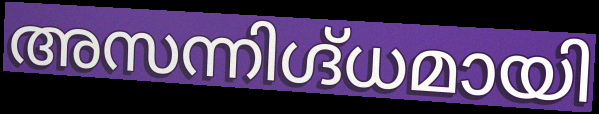
അസന്നിഗ്ദ്ധമായി